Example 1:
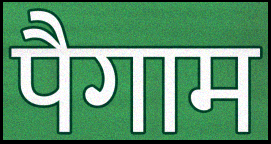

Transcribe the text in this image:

पैगाम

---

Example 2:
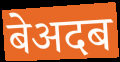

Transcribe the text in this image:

बेअदब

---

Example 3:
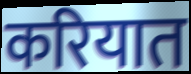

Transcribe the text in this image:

करियात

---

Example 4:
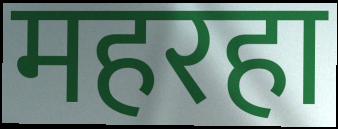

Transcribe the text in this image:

महरहा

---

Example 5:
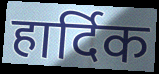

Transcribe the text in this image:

हार्दिक